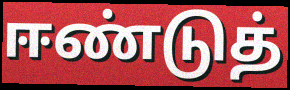
ஈண்டுத்